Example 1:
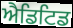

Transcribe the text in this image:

ਐਡਿਟਿਡ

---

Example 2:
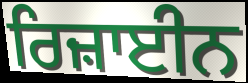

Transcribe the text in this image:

ਰਿਜ਼ਾਈਨ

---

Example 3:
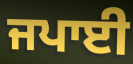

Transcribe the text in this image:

ਜਪਾਈ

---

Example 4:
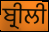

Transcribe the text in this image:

ਬ੍ਰੀਲੀ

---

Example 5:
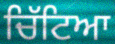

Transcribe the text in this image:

ਚਿੱਟਿਆ